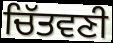
ਚਿੱਤਵਣੀ